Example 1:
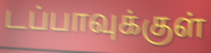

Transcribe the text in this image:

டப்பாவுக்குள்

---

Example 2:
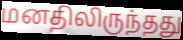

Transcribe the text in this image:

மனதிலிருந்தது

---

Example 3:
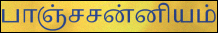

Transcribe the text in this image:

பாஞ்சசன்னியம்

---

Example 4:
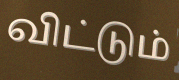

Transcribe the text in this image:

விட்டும்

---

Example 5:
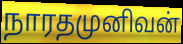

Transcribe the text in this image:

நாரதமுனிவன்